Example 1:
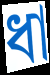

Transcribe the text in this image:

ধা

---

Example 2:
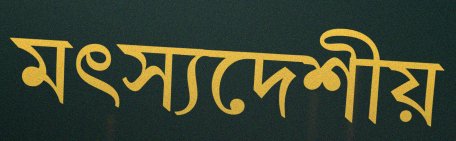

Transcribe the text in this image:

মৎস্যদেশীয়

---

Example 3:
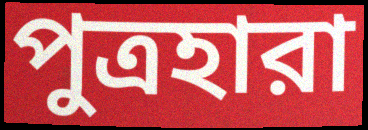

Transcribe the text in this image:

পুত্রহারা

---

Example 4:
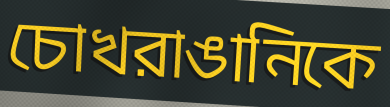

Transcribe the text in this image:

চোখরাঙানিকে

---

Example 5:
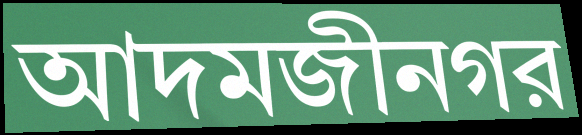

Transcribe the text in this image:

আদমজীনগর